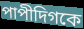
পাপীদিগকে